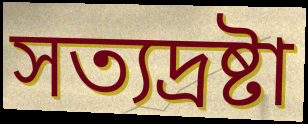
সত্যদ্রষ্টা